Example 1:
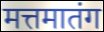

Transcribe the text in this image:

मत्तमातंग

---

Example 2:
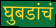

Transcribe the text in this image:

घुबडांचं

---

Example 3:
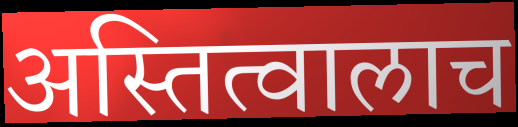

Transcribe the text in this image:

अस्तित्वालाच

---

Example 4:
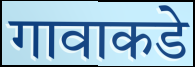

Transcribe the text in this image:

गावाकडे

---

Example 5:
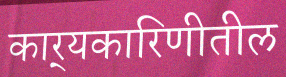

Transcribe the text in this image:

कार्यकारिणीतील